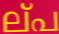
ല്‌പ